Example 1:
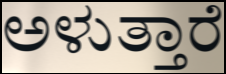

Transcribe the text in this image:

ಅಳುತ್ತಾರೆ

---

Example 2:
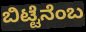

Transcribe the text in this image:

ಬಿಟ್ಟೆನೆಂಬ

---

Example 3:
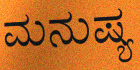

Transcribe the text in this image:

ಮನುಷ್ಯ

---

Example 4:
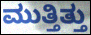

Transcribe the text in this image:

ಮುತ್ತಿತ್ತು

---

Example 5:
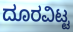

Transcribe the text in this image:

ದೂರವಿಟ್ಟ